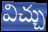
విచ్చు